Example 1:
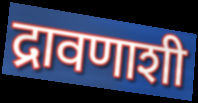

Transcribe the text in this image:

द्रावणाशी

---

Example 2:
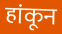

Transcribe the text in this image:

हांकून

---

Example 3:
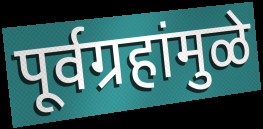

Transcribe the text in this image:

पूर्वग्रहांमुळे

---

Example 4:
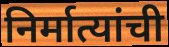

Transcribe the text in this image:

निर्मात्यांची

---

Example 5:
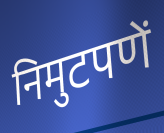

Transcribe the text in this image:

निमुटपणें